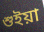
শুইয়া